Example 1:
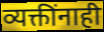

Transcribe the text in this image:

व्यक्तींनाही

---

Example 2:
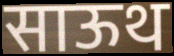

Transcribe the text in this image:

साऊथ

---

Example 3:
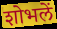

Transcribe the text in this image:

शोभलें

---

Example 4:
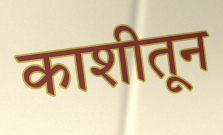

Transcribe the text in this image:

काशीतून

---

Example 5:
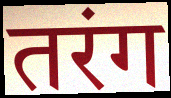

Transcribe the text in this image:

तरंग